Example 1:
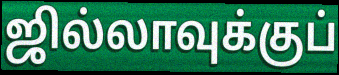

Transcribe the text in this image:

ஜில்லாவுக்குப்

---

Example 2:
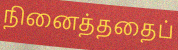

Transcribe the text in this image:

நினைத்ததைப்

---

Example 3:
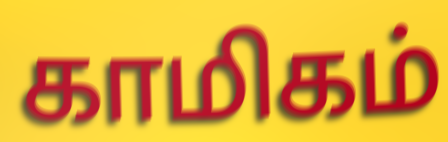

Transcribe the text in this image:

காமிகம்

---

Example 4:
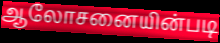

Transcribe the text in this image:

ஆலோசனையின்படி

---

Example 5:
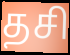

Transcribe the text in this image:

தசி